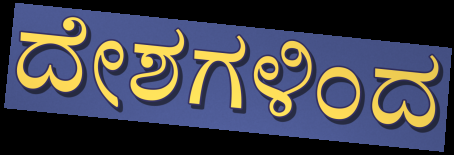
ದೇಶಗಳಿಂದ